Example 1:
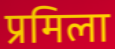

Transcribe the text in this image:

प्रमिला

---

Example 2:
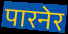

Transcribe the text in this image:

पारनेर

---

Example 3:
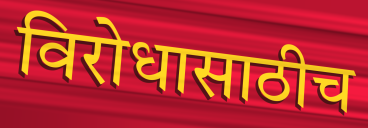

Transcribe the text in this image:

विरोधासाठीच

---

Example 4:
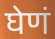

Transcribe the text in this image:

घेणं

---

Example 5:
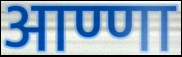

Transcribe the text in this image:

आण्णा